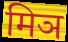
मिञ